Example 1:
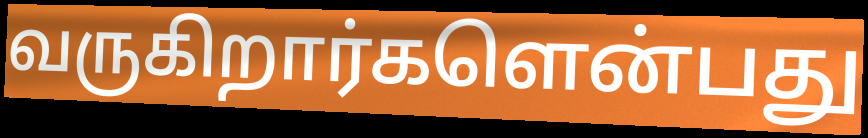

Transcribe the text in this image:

வருகிறார்களென்பது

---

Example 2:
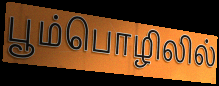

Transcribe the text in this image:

பூம்பொழிலில்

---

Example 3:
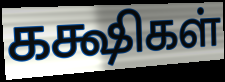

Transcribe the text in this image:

கக்ஷிகள்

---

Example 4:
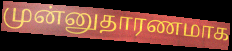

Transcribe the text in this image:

முன்னுதாரணமாக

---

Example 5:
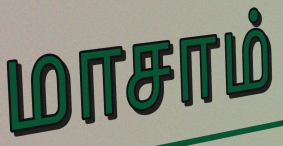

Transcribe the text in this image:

மாசாம்